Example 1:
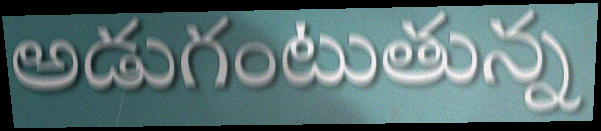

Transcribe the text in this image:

అడుగంటుతున్న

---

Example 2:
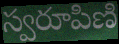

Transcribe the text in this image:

స్వరూపిణి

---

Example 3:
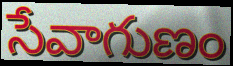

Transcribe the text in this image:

సేవాగుణం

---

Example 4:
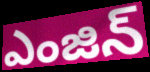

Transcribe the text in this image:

ఎంజిన్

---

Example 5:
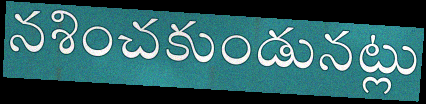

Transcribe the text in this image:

నశించకుండునట్లు